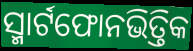
ସ୍ମାର୍ଟଫୋନଭିତ୍ତିକ